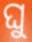
ଘୁ